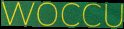
WOCCU